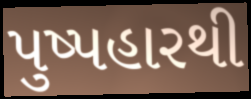
પુષ્પહારથી